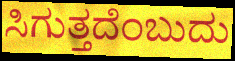
ಸಿಗುತ್ತದೆಂಬುದು